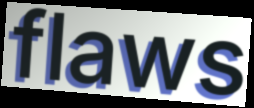
flaws